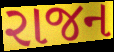
રાજન